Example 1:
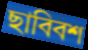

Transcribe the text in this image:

ছাবিবশ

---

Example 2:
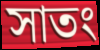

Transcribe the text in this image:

সাতং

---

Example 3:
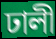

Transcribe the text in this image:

ঢালী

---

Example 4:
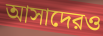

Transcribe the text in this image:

আসাদেরও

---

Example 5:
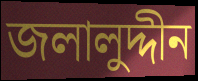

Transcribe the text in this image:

জলালুদ্দীন